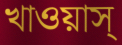
খাওয়াস্